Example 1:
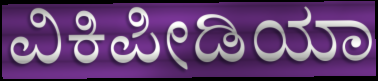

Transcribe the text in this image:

ವಿಕಿಪೀಡಿಯಾ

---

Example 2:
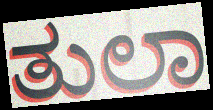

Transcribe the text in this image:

ತುಲಾ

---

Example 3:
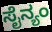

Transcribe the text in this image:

ಸೈನ್ಯಂ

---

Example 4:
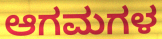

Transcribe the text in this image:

ಆಗಮಗಳ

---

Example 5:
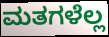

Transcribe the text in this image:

ಮತಗಳೆಲ್ಲ